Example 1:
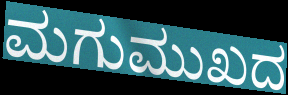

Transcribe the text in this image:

ಮಗುಮುಖದ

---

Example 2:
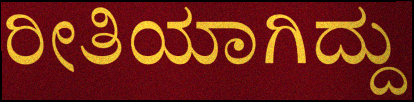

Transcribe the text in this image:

ರೀತಿಯಾಗಿದ್ದು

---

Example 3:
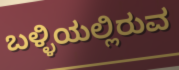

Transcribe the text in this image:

ಬಳ್ಳಿಯಲ್ಲಿರುವ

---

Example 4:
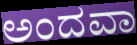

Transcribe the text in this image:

ಅಂದವಾ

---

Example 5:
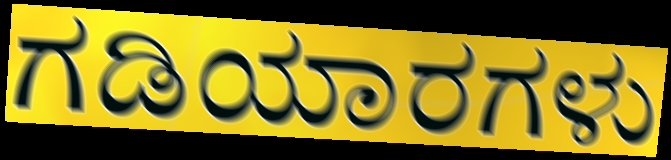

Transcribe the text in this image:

ಗಡಿಯಾರಗಳು